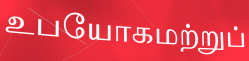
உபயோகமற்றுப்